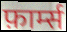
फ़ार्म्स